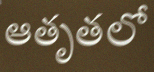
ఆతృతలో